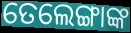
ତେଲେଙ୍ଗାଙ୍କ